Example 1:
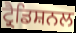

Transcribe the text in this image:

ਟ੍ਰੈਡਿਸ਼ਨਲ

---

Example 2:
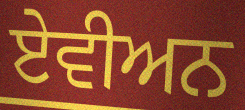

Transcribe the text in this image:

ਏਵੀਅਨ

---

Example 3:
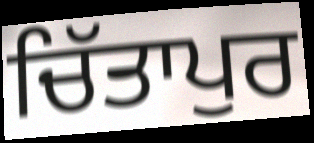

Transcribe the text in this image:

ਚਿੱਤਾਪੁਰ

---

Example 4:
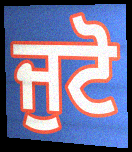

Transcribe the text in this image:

ਜੁਟੋ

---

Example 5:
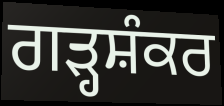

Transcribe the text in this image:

ਗੜ੍ਹਸ਼ੰਕਰ